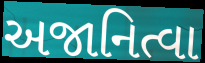
અજાનિત્વા